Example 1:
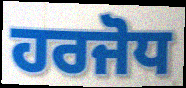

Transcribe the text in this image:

ਹਰਜੋਧ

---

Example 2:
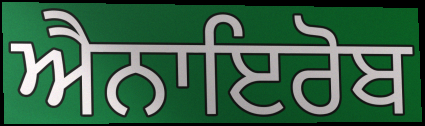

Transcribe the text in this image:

ਐਨਾਇਰੋਬ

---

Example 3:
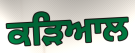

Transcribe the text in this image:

ਕੜਿਆਲ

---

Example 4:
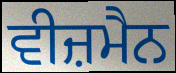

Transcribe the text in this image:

ਵੀਜ਼ਮੈਨ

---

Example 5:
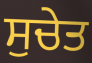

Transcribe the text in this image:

ਸੁਚੇਤ